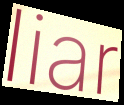
liar